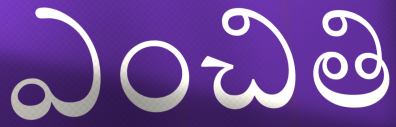
ఎంచితి